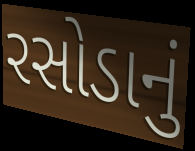
રસોડાનું